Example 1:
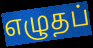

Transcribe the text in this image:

எழுதப்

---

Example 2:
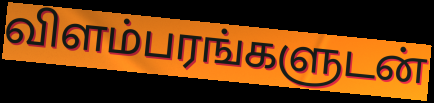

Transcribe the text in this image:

விளம்பரங்களுடன்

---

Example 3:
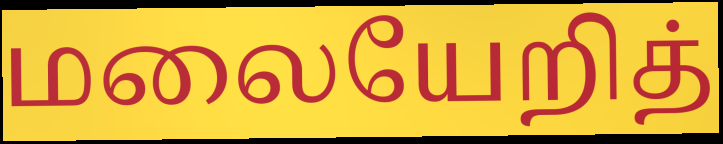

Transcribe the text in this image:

மலையேறித்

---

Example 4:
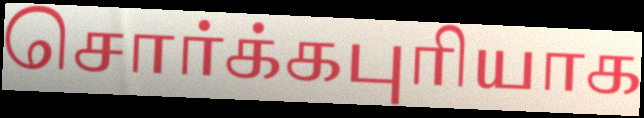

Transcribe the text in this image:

சொர்க்கபுரியாக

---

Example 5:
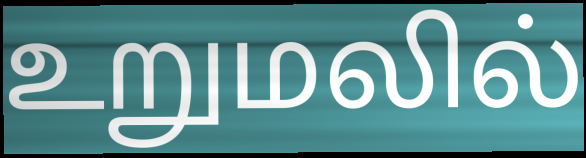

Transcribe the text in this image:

உறுமலில்